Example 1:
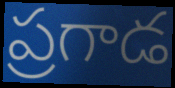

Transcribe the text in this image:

ప్రగాడ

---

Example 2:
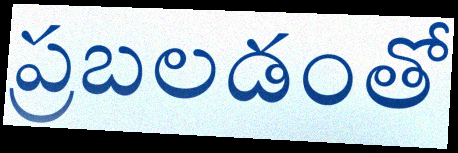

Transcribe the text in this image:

ప్రబలడంతో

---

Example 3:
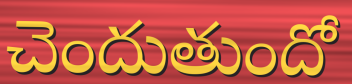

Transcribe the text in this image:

చెందుతుందో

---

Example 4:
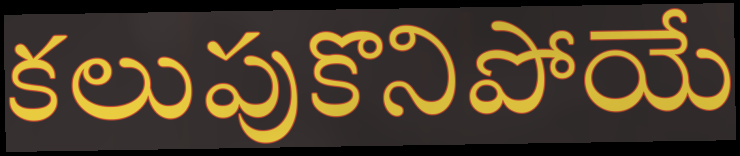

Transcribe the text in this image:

కలుపుకొనిపోయే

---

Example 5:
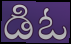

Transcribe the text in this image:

డిఓ